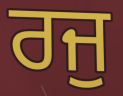
ਰਜੁ